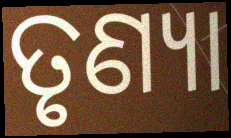
ତୃଣ୍ୟା